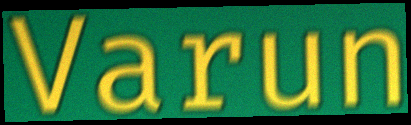
Varun